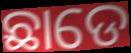
ଛାଡେ